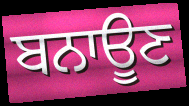
ਬਨਾਊਣ